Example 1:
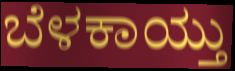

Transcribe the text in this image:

ಬೆಳಕಾಯ್ತು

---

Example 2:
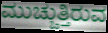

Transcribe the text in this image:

ಮುಚ್ಚುತ್ತಿರುವ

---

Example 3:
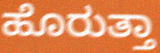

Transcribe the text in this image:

ಹೊರುತ್ತಾ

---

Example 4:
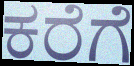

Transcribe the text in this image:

ಕರೆಗೆ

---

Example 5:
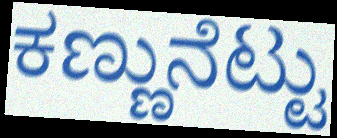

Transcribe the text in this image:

ಕಣ್ಣುನೆಟ್ಟು